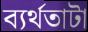
ব্যর্থতাটা